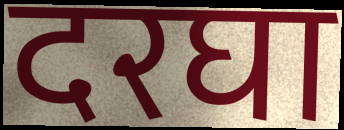
दरघा